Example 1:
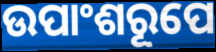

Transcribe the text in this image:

ଉପାଂଶରୂପେ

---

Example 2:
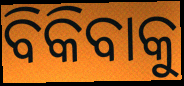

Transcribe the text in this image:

ବିକିବାକୁ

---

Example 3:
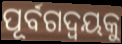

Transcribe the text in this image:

ପୂର୍ବଗଦ୍ଵୟକୁ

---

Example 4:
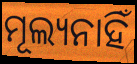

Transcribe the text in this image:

ମୂଲ୍ୟନାହିଁ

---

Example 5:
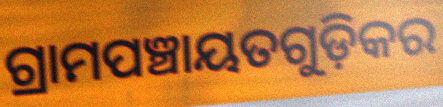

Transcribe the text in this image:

ଗ୍ରାମପଞ୍ଚାୟତଗୁଡ଼ିକର